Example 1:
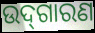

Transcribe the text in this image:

ଉଦ୍‌ଗାରଣ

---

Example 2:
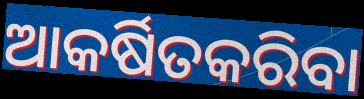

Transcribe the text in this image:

ଆକର୍ଷିତକରିବା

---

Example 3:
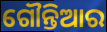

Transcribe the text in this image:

ଗୌନ୍ତିଆର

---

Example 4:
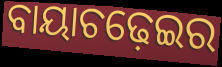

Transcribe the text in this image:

ବାୟାଚଢ଼େଇର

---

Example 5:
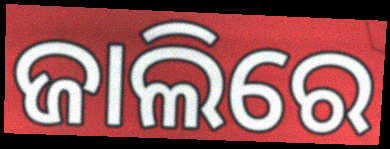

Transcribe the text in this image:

ଜାଲିରେ